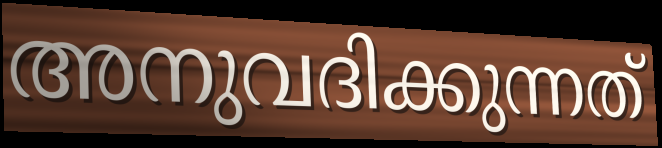
അനുവദിക്കുന്നത്